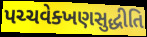
પચ્ચવેક્ખણસુદ્ધીતિ